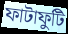
ফাটাফুটি